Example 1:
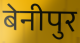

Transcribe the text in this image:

बेनीपुर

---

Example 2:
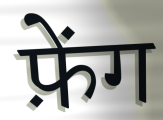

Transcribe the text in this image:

फ़ेंग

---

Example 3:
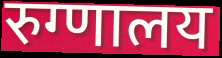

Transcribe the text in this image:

रुग्णालय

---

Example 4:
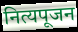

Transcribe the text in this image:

नित्यपूजन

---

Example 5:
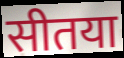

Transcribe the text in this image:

सीतया